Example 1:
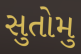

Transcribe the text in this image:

સુતોમુ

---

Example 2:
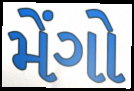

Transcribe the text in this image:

મેંગો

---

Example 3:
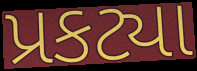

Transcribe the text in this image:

પ્રકટ્યા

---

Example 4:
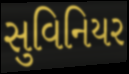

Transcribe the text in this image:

સુવિનિયર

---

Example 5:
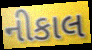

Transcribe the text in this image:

નીકાલ